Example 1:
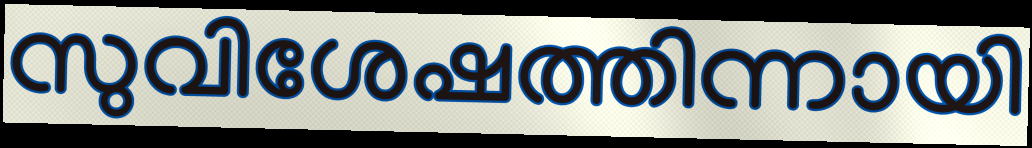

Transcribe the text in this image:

സുവിശേഷത്തിന്നായി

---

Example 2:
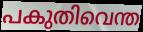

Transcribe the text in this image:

പകുതിവെന്ത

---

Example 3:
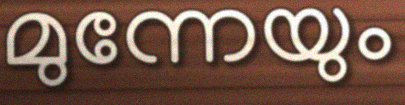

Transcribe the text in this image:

മുന്നേയും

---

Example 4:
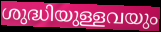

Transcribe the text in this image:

ശുദ്ധിയുള്ളവയും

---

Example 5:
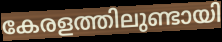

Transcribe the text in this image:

കേരളത്തിലുണ്ടായി